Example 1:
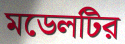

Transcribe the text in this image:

মডেলটির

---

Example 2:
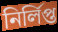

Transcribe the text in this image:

নির্লিপ্ত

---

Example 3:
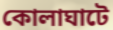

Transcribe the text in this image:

কোলাঘাটে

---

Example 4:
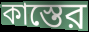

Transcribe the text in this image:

কাস্তের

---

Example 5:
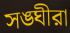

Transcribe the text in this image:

সঙ্ঘীরা